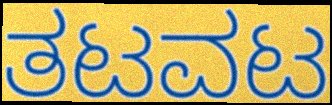
ತಟವಟ